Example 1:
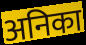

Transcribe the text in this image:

अनिका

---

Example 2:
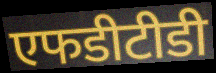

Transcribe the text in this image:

एफडीटीडी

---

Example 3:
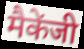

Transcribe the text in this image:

मैकेंजी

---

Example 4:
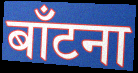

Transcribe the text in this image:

बाँटना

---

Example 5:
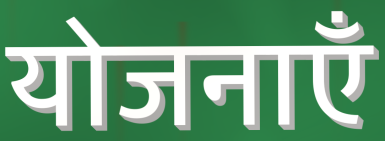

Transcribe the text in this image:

योजनाएँ